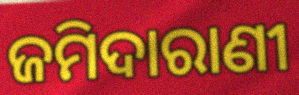
ଜମିଦାରାଣୀ